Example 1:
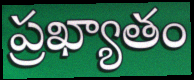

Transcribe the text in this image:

ప్రఖ్యాతం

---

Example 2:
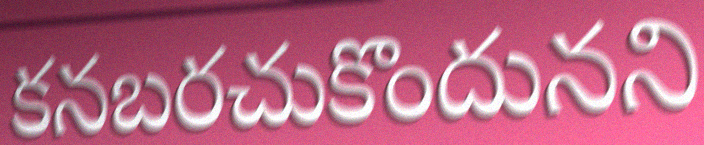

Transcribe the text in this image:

కనబరచుకొందునని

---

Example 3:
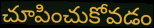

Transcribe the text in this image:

చూపించుకోవడం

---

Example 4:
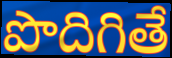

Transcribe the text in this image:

పొదిగితే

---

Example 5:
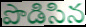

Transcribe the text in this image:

పొడిసిన